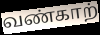
வண்காற்